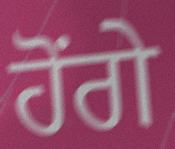
ਹੋਂਗੇ